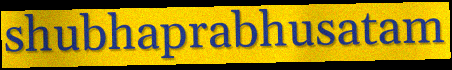
shubhaprabhusatam